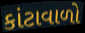
કાંટાવાળો